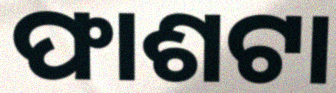
ଫାଶଟା